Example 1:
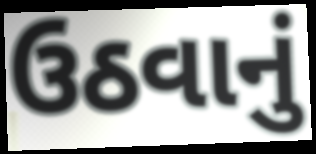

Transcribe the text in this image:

ઉઠવાનું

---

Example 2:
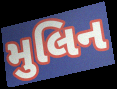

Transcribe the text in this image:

મુલિન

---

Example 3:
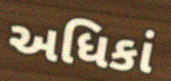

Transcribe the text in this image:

અધિકાં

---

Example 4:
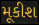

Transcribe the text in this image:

મૂકીશ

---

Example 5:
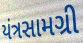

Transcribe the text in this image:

યંત્રસામગ્રી